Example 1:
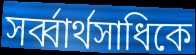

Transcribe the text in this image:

সর্ব্বার্থসাধিকে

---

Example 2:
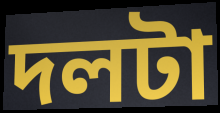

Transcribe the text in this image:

দলটা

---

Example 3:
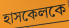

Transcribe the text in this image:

হাসকেলকে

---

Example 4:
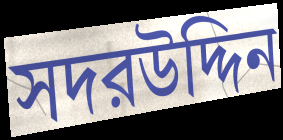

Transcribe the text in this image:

সদরউদ্দিন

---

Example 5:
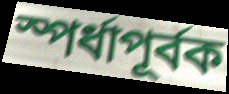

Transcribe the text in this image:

স্পর্ধাপূর্বক